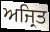
ਅਜ੍ਰਿਤ